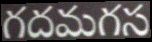
గదమగస